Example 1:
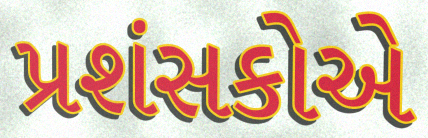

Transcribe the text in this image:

પ્રશંસકોએ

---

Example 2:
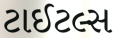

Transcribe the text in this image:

ટાઈટલ્સ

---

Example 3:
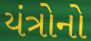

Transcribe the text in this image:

યંત્રોનો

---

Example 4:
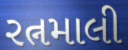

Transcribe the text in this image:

રત્નમાલી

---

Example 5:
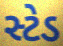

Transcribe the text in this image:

સ્ટેડ